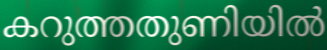
കറുത്തതുണിയിൽ